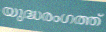
യുദ്ധരംഗത്ത്